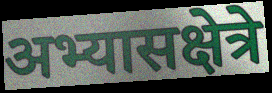
अभ्यासक्षेत्रे